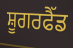
ਸ਼ੂਗਰਫੈੱਡ